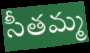
సీతమ్మ